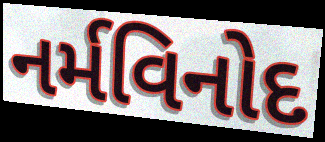
નર્મવિનોદ